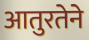
आतुरतेने